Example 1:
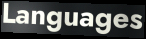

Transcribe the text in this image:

Languages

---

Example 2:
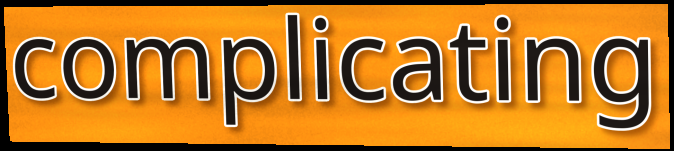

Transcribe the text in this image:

complicating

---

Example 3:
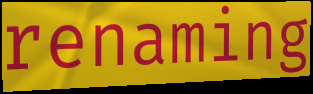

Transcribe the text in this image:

renaming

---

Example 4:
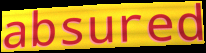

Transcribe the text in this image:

absured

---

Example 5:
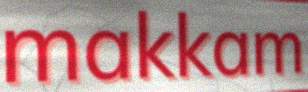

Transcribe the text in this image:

makkam